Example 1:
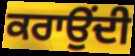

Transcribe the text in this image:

ਕਰਾਉਂਦੀ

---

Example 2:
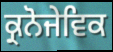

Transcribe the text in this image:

ਕ੍ਰਨੋਜੇਵਿਕ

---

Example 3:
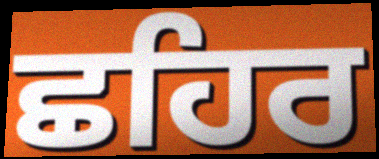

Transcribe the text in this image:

ਛਹਿਰ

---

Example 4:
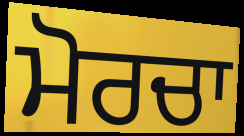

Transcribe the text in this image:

ਮੋਰਚਾ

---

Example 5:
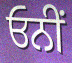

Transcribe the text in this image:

ਓਨੀਂ